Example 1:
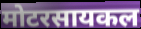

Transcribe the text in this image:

मोटरसायकल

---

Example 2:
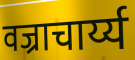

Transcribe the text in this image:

वज्राचार्य्य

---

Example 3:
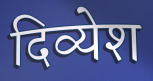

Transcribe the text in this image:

दिव्येश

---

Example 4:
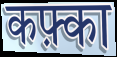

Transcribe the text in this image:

कफ़्का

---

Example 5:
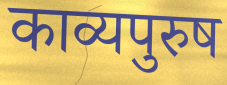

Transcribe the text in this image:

काव्यपुरुष